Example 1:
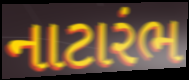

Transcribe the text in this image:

નાટારંભ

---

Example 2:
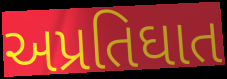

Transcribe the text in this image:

અપ્રતિઘાત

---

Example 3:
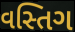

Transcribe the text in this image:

વસ્તિગ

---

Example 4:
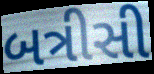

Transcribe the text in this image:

બત્રીસી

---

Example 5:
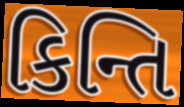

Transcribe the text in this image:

કિન્તિ